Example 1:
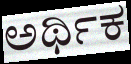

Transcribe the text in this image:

ಅರ್ಥಿಕ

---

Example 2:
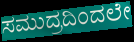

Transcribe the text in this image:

ಸಮುದ್ರದಿಂದಲೇ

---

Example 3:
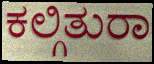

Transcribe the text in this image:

ಕಲ್ಗಿತುರಾ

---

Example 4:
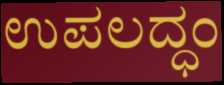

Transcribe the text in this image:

ಉಪಲದ್ಧಂ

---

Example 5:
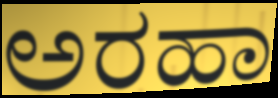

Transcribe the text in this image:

ಅರಹಾ